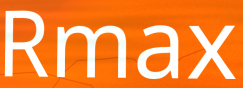
Rmax